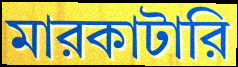
মারকাটারি